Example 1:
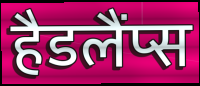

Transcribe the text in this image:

हैडलैंप्स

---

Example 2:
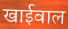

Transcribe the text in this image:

खाईवाल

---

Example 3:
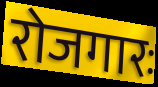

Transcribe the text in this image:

रोजगारः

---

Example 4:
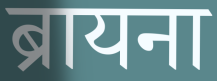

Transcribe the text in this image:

ब्रायना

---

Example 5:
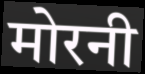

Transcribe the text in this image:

मोरनी